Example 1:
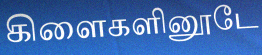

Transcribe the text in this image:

கிளைகளினூடே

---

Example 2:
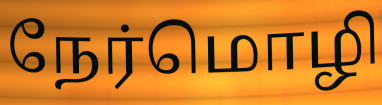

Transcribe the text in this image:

நேர்மொழி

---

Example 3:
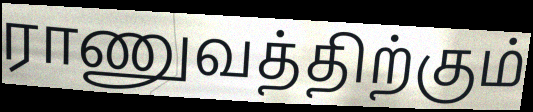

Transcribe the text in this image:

ராணுவத்திற்கும்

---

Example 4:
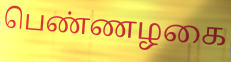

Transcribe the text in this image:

பெண்ணழகை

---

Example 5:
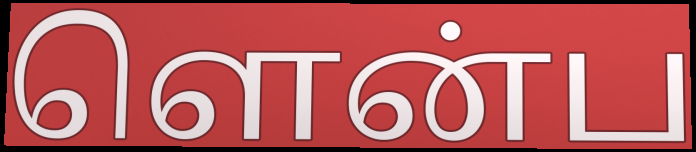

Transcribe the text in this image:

ளென்ப